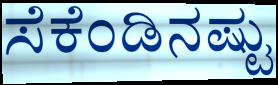
ಸೆಕೆಂಡಿನಷ್ಟು